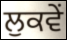
ਲੁਕਵੇਂ